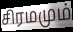
சிரமமும்